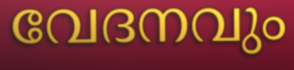
വേദനവും